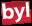
byl